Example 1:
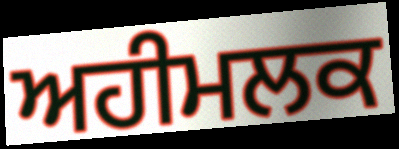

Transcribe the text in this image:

ਅਹੀਮਲਕ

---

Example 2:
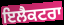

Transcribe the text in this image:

ਇਲੈਕਟਰਾ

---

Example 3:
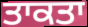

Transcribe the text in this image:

ਤਾਕਤਾ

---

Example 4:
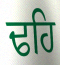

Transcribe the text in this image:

ਢਹਿ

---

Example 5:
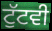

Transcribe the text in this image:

ਟੁੱਟਵੀ